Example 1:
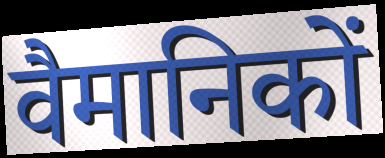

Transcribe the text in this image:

वैमानिकों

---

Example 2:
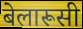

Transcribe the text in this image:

बेलारूसी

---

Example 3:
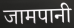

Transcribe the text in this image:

जामपानी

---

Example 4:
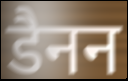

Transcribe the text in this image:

डैनन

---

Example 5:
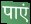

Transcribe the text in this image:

पाएं